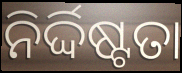
ନିର୍ଦ୍ଦିଷ୍ଟତା